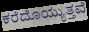
ಕರೆದೊಯ್ಯುತ್ತವೆ